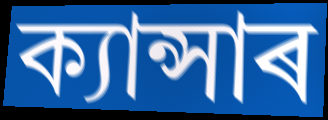
ক্যান্সাৰ